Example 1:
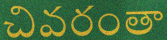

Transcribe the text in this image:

చివరంతా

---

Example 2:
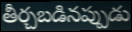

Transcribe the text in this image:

తీర్చబడినప్పుడు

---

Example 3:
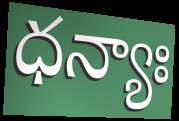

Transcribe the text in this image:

ధన్యాః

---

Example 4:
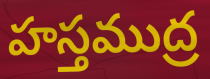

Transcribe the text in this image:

హస్తముద్ర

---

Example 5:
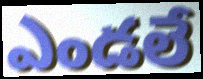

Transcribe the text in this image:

ఎండలే